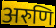
अरुणि